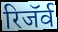
रिजॅर्व